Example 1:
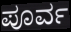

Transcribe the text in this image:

ಪೂರ್ವ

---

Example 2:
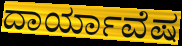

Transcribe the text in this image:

ದಾರ್ಯಾವೆಷ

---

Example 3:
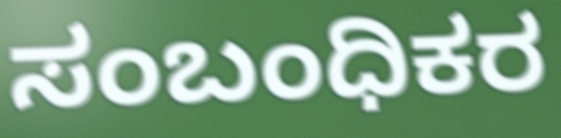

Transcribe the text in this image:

ಸಂಬಂಧಿಕರ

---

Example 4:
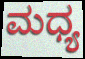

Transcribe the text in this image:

ಮಧ್ಯ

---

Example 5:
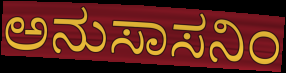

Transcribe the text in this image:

ಅನುಸಾಸನಿಂ